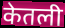
केतली